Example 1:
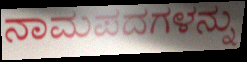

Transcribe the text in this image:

ನಾಮಪದಗಳನ್ನು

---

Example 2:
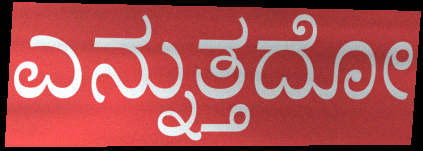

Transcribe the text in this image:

ಎನ್ನುತ್ತದೋ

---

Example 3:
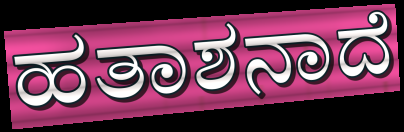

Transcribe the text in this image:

ಹತಾಶನಾದೆ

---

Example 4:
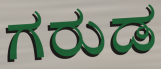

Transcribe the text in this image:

ಗರುಡ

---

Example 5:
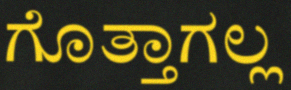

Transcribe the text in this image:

ಗೊತ್ತಾಗಲ್ಲ